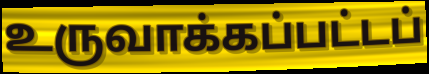
உருவாக்கப்பட்டப்